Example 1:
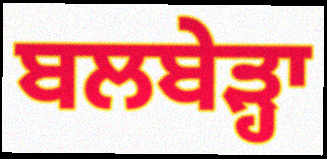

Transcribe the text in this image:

ਬਲਬੇੜ੍ਹਾ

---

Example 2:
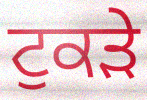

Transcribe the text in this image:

ਟੁਕੜੇ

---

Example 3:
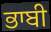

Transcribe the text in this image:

ਭਾਬੀ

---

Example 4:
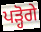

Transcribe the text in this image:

ਪੜ੍ਹੋਗੇ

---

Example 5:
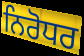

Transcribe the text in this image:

ਨਿਰੋਧਰ